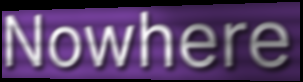
Nowhere